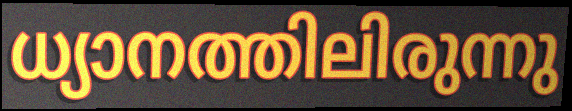
ധ്യാനത്തിലിരുന്നു